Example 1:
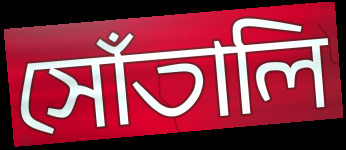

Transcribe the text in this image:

সোঁতালি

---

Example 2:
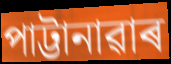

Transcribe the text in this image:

পাট্টানাৱাৰ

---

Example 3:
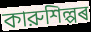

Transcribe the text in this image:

কাৰুশিল্পৰ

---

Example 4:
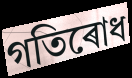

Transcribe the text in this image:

গতিৰোধ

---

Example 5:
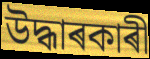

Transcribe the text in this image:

উদ্ধাৰকাৰী